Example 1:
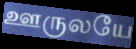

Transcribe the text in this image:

ஊருலயே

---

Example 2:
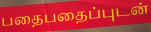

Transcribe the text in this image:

பதைபதைப்புடன்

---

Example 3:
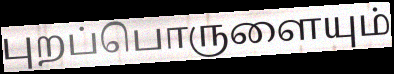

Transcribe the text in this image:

புறப்பொருளையும்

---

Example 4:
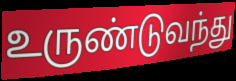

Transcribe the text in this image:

உருண்டுவந்து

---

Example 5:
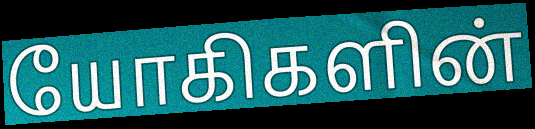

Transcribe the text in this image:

யோகிகளின்